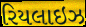
રિયલાઇઝ